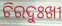
ଚିରଦୁଃଖୀ